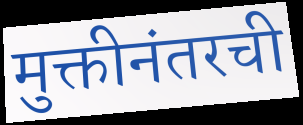
मुक्तीनंतरची